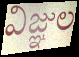
విజ్ఞుల